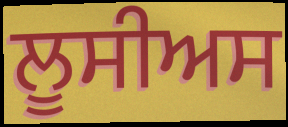
ਲੂਸੀਅਸ